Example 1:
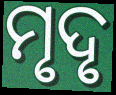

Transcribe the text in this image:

ମୃଦୃ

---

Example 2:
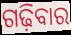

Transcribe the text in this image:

ଗଢ଼ିବାର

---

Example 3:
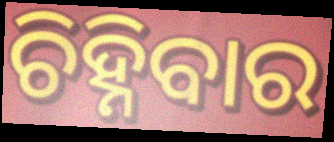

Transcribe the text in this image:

ଚିହ୍ନିବାର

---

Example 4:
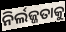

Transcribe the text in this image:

ନିର୍ଲଜ୍ଜତାକୁ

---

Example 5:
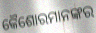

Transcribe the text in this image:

କୈଶୋରମାନଙ୍କର